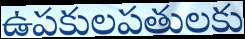
ఉపకులపతులకు